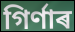
গিৰ্ণাৰ